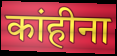
कांहीना